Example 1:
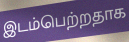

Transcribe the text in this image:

இடம்பெற்றதாக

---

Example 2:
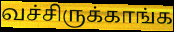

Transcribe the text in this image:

வச்சிருக்காங்க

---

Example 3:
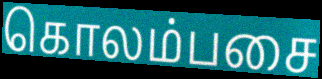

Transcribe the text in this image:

கொலம்பசை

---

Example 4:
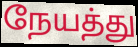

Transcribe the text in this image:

நேயத்து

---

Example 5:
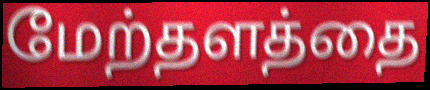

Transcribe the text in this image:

மேற்தளத்தை